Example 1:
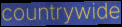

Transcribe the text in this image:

countrywide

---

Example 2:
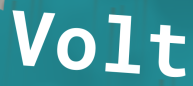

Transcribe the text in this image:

Volt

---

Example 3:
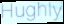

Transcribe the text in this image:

Hughly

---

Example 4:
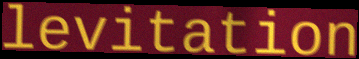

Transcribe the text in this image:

levitation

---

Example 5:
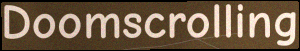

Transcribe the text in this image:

Doomscrolling